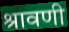
श्रावणी